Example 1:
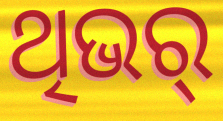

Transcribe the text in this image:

ଥିଭର୍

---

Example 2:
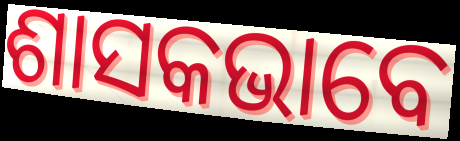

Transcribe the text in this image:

ଶାସକଭାବେ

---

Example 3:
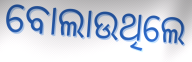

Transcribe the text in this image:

ବୋଲାଉଥିଲେ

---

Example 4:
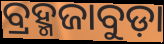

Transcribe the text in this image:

ବ୍ରହ୍ମଜାବୁଡ଼ା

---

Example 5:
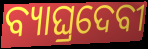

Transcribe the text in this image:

ବ୍ୟାଘ୍ରଦେବୀ